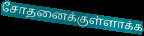
சோதனைக்குள்ளாக்க